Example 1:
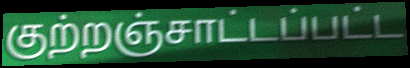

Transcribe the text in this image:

குற்றஞ்சாட்டப்பட்ட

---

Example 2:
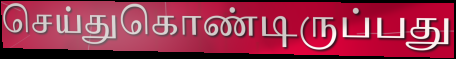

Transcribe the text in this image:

செய்துகொண்டிருப்பது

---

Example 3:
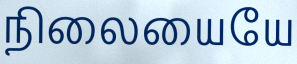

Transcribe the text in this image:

நிலையையே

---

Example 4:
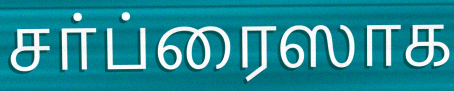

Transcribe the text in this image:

சர்ப்ரைஸாக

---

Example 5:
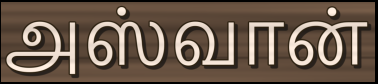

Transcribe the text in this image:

அஸ்வான்